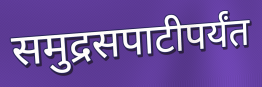
समुद्रसपाटीपर्यंत